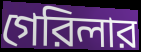
গেরিলার